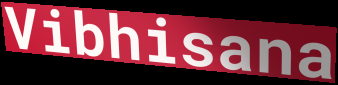
Vibhisana